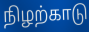
நிழற்காடு